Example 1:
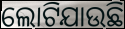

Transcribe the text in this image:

ଲୋଟିଯାଉଛି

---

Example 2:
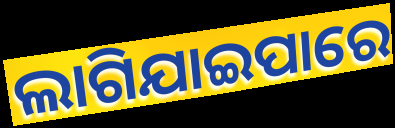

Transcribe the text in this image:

ଲାଗିଯାଇପାରେ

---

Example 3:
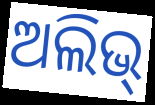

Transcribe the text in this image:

ଅଲିଭ୍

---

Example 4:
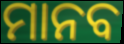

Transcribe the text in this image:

ମାନବ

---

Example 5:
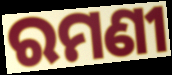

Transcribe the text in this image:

ରମଣୀ